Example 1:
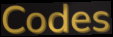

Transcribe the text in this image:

Codes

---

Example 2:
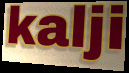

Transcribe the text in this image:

kalji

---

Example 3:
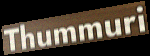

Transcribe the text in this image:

Thummuri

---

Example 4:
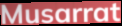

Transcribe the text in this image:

Musarrat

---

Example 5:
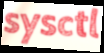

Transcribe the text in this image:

sysctl